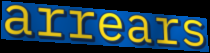
arrears